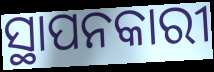
ସ୍ଥାପନକାରୀ